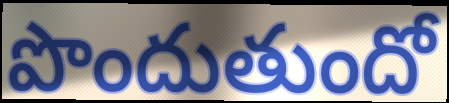
పొందుతుందో